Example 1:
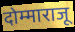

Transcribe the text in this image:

दोम्माराजू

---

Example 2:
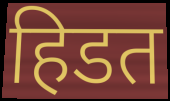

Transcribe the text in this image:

हिडत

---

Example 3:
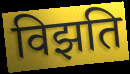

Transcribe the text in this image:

विझति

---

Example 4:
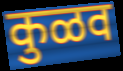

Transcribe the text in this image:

कुळव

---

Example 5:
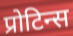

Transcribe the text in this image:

प्रोटिन्स